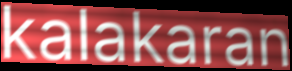
kalakaran